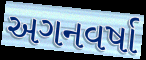
અગનવર્ષા